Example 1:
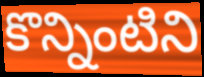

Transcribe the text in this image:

కొన్నింటిని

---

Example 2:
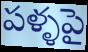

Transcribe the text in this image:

పళ్ళపై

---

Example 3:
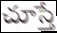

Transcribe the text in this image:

చూస్తే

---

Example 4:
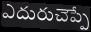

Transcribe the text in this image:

ఎదురుచెప్పే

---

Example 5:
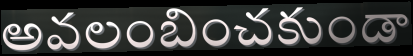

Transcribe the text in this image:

అవలంబించకుండా